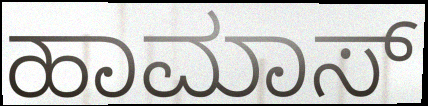
ಹಾಮಾಸ್